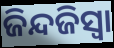
ଜିନ୍ଦଜିସ୍ୱା